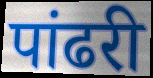
पांढरी